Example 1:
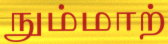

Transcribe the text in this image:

நும்மாற்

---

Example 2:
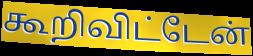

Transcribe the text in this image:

கூறிவிட்டேன்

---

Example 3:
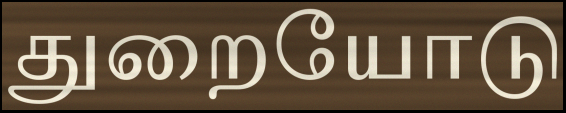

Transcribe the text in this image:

துறையோடு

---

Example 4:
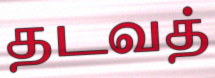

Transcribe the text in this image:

தடவத்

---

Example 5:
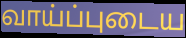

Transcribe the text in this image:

வாய்ப்புடைய